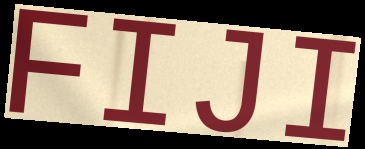
FIJI